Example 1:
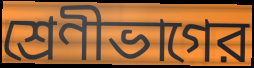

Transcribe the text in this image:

শ্রেণীভাগের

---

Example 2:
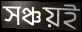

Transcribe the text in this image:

সঞ্চয়ই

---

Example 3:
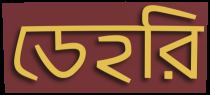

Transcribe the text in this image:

ডেহরি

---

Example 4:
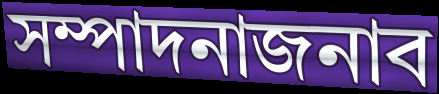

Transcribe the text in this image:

সম্পাদনাজনাব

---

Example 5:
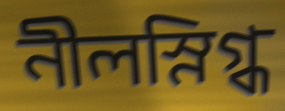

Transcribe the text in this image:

নীলস্নিগ্ধ